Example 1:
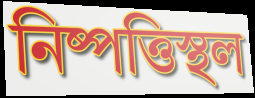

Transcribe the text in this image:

নিষ্পত্তিস্থল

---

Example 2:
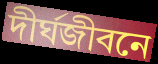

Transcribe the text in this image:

দীর্ঘজীবনে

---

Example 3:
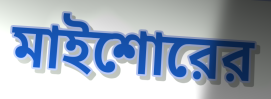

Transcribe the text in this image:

মাইশোরের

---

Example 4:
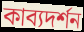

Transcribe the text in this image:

কাব্যদর্শন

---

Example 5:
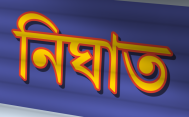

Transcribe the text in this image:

নিঘাত